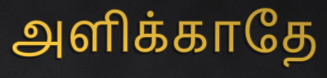
அளிக்காதே